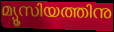
മ്യൂസിയത്തിനു